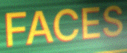
FACES